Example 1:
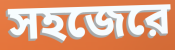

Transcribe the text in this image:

সহজেরে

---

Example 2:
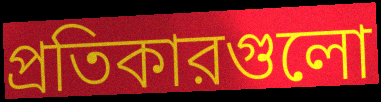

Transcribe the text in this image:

প্রতিকারগুলো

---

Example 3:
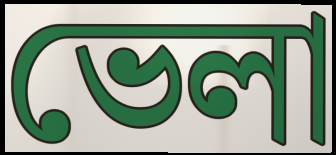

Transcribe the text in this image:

ভেলা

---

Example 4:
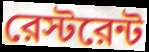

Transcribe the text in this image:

রেস্টরেন্ট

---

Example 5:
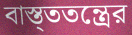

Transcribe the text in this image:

বাস্ত্ততন্ত্রের